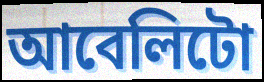
আবেলিটো